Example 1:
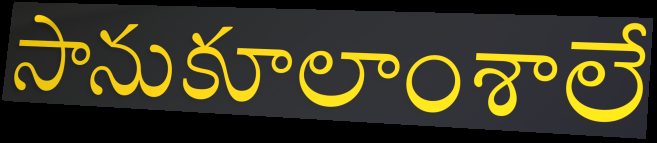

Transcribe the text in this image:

సానుకూలాంశాలే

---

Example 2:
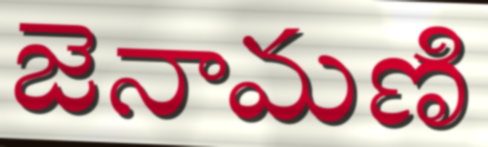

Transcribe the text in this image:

జెనామణి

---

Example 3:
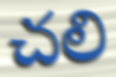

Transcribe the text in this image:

చలి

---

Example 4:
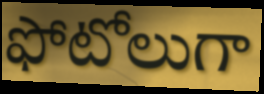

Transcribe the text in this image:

ఫోటోలుగా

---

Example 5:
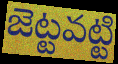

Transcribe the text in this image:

జెట్టవట్టి